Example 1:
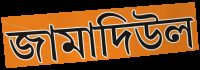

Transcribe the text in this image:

জামাদিউল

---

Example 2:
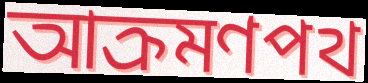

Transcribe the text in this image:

আক্রমণপথ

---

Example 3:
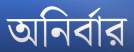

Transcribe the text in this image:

অনির্বার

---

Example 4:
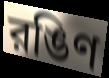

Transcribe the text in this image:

রঙিণ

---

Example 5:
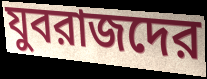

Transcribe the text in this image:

যুবরাজদের